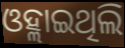
ଓହ୍ଲାଇଥିଲି